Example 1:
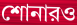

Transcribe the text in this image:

শোনারও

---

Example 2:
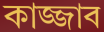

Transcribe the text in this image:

কাজ্জাব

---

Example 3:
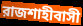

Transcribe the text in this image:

রাজশাহীবাসী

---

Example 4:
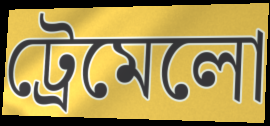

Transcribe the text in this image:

ট্রেমেলো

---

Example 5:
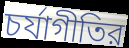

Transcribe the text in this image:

চর্যাগীতির